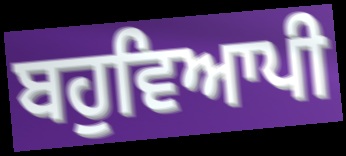
ਬਹੁਵਿਆਪੀ